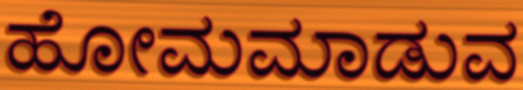
ಹೋಮಮಾಡುವ